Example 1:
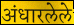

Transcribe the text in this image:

अंधारलेले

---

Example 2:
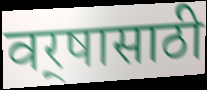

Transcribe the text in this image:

वर्षासाठी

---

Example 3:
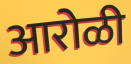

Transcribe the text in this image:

आरोळी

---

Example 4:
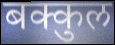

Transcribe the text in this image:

बक्कुल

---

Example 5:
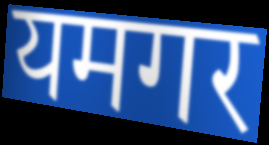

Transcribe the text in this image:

यमगर